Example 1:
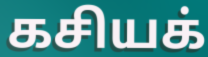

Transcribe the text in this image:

கசியக்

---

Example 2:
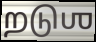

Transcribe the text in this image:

றடுஶ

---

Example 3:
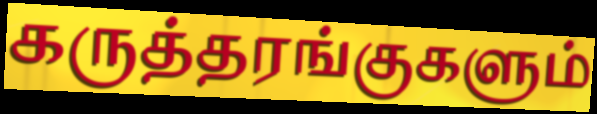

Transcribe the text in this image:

கருத்தரங்குகளும்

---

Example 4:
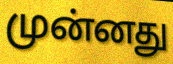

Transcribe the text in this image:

முன்னது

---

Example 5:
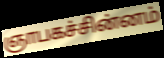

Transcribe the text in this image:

ஞாபகச்சின்னம்